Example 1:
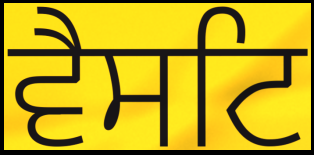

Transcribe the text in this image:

ਵੈਸਟਿ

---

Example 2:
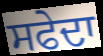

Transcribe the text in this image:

ਸਫੇਦਾ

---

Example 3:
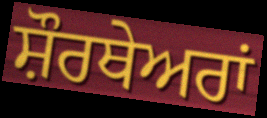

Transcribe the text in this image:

ਸ਼ੌਰਥੇਅਰਾਂ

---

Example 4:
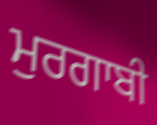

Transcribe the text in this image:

ਮੁਰਗਾਬੀ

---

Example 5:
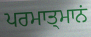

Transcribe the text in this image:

ਪਰਮਾਤ੍ਮਾਨਂ